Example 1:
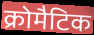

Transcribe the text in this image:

क्रोमैटिक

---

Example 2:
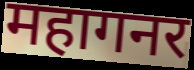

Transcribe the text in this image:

महागनर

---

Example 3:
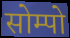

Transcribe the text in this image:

सोम्पो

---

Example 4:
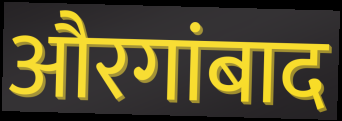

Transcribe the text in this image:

औरगांबाद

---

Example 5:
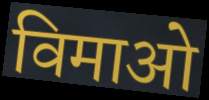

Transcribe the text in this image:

विमाओ